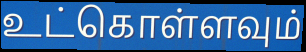
உட்கொள்ளவும்